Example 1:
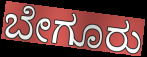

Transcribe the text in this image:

ಬೇಗೂರು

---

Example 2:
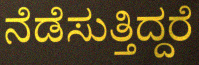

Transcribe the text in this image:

ನೆಡೆಸುತ್ತಿದ್ದರೆ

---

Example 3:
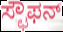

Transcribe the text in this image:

ಸ್ಟೌಫನ್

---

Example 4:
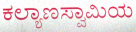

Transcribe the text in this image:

ಕಲ್ಯಾಣಸ್ವಾಮಿಯ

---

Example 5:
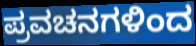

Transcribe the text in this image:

ಪ್ರವಚನಗಳಿಂದ